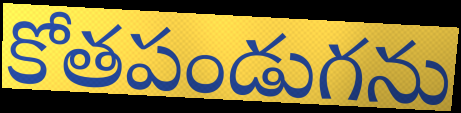
కోతపండుగను